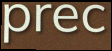
prec